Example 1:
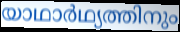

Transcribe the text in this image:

യാഥാർഥ്യത്തിനും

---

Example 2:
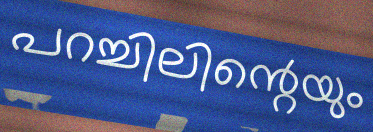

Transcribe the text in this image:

പറച്ചിലിന്റെയും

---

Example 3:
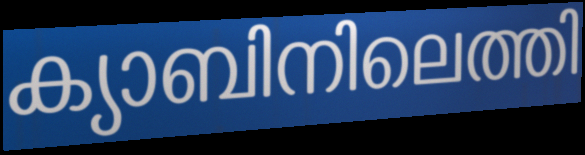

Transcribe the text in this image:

ക്യാബിനിലെത്തി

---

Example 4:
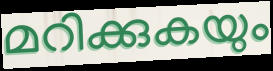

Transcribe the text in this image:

മറിക്കുകയും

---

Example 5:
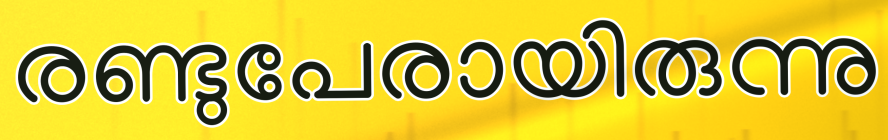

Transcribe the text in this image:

രണ്ടുപേരായിരുന്നു